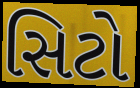
સિટો